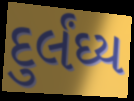
દુર્લંઘ્ય